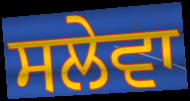
ਸਲੇਵਾ